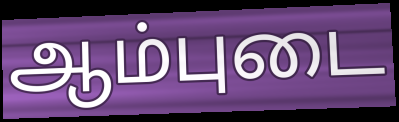
ஆம்புடை